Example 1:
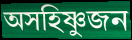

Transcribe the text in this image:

অসহিষ্ণুজন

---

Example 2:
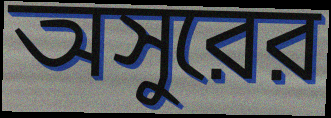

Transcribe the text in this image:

অসুরের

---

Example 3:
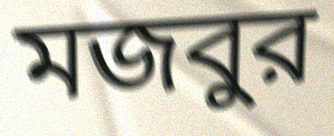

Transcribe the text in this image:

মজবুর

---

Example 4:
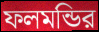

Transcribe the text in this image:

ফলমন্ডির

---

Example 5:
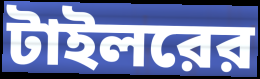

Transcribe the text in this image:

টাইলরের